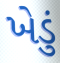
ખેડું